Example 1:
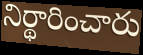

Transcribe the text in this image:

నిర్థారించారు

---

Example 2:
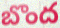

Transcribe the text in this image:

బొంద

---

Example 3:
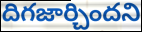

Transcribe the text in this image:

దిగజార్చిందని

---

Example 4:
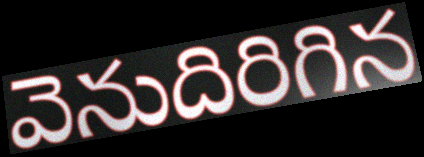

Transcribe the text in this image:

వెనుదిరిగిన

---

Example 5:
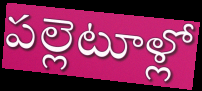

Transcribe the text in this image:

పల్లెటూళ్లో